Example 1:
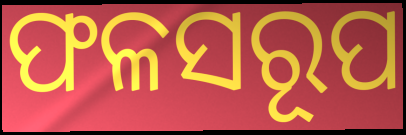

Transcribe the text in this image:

ଫଳସରୂପ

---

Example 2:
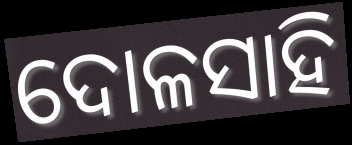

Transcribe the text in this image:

ଦୋଳସାହି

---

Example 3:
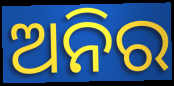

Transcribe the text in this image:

ଅନିର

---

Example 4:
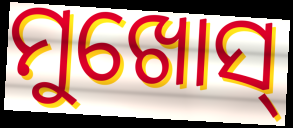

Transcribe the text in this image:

ମୁଖୋସ୍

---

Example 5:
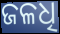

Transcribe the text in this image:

ଜଳଧି